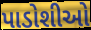
પાડોશીઓ